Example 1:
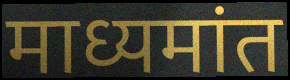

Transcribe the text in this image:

माध्यमांत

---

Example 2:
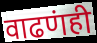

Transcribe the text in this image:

वाढणंही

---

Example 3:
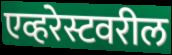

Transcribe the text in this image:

एव्हरेस्टवरील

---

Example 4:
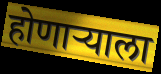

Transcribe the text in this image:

होणाऱ्याला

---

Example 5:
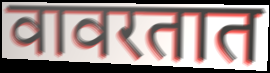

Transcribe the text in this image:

वावरतात